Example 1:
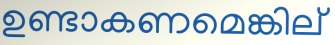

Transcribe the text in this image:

ഉണ്ടാകണമെങ്കില്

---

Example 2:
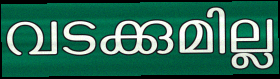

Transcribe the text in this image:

വടക്കുമില്ല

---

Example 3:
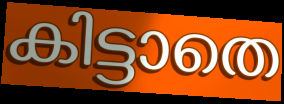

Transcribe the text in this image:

കിട്ടാതെ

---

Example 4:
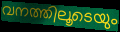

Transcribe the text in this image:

വനത്തിലൂടെയും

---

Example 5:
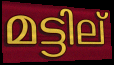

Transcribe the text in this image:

മട്ടില്